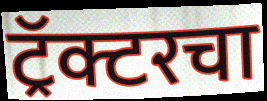
ट्रॅक्टरचा